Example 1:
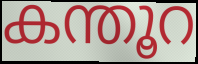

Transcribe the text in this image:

കന്തൂറ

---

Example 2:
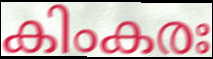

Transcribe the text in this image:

കിംകരഃ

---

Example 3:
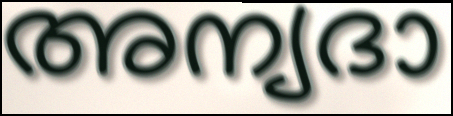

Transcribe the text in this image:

അന്യദാ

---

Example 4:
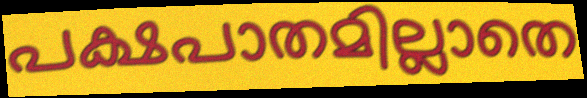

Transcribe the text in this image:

പക്ഷപാതമില്ലാതെ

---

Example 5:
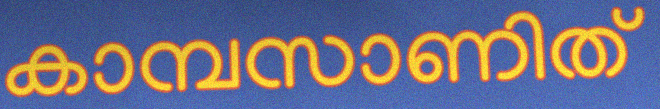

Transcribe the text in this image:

കാമ്പസാണിത്